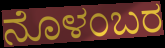
ನೊಳಂಬರ